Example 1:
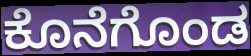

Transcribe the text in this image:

ಕೊನೆಗೊಂಡ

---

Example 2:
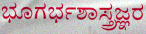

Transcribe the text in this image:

ಭೂಗರ್ಭಶಾಸ್ತ್ರಜ್ಞರ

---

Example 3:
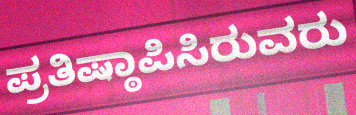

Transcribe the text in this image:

ಪ್ರತಿಷ್ಠಾಪಿಸಿರುವರು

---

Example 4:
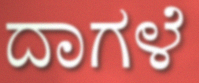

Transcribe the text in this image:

ದಾಗಳೆ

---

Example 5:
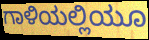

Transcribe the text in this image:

ಗಾಳಿಯಲ್ಲಿಯೂ